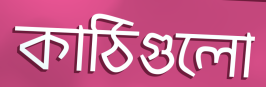
কাঠিগুলো